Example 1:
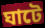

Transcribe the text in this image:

ঘাটে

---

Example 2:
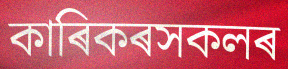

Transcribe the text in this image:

কাৰিকৰসকলৰ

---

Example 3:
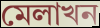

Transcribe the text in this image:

মেলাখন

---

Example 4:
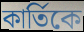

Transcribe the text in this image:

কাৰ্তিকে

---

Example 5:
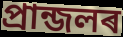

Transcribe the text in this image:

প্ৰান্জলৰ